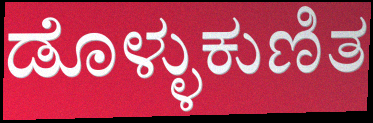
ಡೊಳ್ಳುಕುಣಿತ